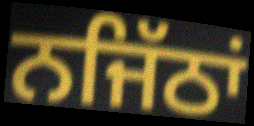
ਨਜਿੱਠਾਂ